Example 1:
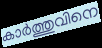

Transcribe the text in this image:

കാർത്തുവിനെ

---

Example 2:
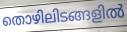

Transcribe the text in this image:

തൊഴിലിടങ്ങളിൽ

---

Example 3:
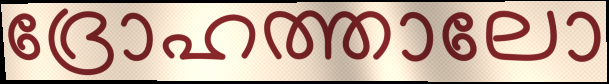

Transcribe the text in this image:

ദ്രോഹത്താലോ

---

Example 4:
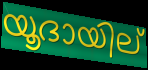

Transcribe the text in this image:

യൂദായില്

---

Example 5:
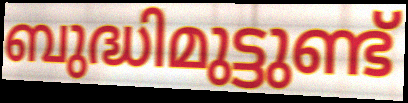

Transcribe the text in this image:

ബുദ്ധിമുട്ടുണ്ട്